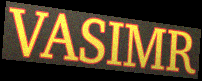
VASIMR